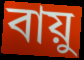
বায়ু